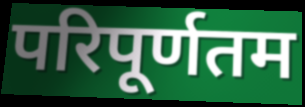
परिपूर्णतम